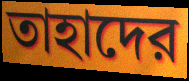
তাহাদের